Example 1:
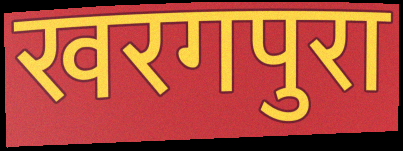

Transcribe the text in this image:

खरगपुरा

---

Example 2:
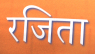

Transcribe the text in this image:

रजिता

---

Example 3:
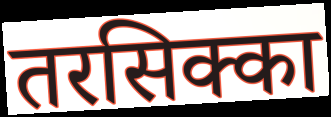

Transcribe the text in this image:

तरसिक्का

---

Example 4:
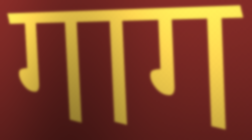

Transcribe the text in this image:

गाग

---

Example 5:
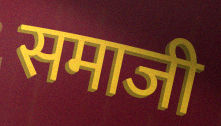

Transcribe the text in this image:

समाजी